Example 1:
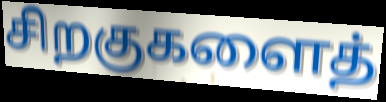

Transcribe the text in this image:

சிறகுகளைத்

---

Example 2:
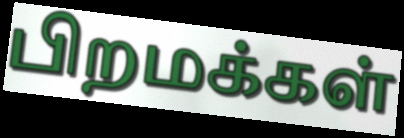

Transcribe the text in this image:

பிறமக்கள்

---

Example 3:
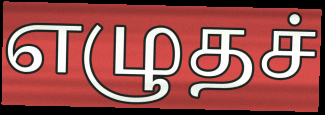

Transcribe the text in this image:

எழுதச்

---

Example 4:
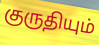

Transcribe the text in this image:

குருதியும்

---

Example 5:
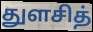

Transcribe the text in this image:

துளசித்